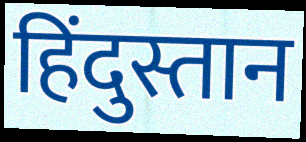
हिंदुस्तान